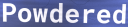
Powdered